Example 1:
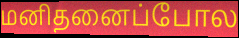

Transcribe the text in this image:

மனிதனைப்போல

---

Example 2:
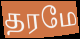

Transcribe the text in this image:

தரமே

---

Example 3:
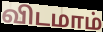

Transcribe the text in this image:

விடமாம்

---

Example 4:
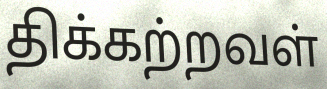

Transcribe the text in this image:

திக்கற்றவள்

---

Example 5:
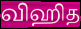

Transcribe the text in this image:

விஹித